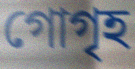
গোগৃহ